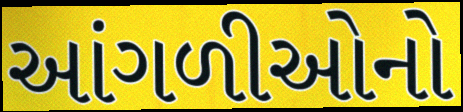
આંગળીઓનો